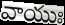
వాయుః